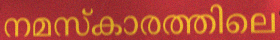
നമസ്കാരത്തിലെ